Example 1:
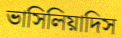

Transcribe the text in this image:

ভাসিলিয়াদিস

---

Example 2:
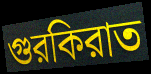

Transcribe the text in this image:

গুরকিরাত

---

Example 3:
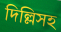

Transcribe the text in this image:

দিল্লিসহ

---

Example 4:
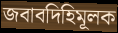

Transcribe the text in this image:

জবাবদিহিমূলক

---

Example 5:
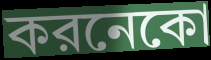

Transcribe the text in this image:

করনেকো